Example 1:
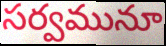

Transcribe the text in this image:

సర్వమునూ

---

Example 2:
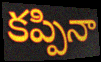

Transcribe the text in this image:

కప్పినా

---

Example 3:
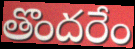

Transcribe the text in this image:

తొందరేం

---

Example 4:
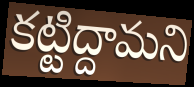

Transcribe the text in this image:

కట్టిద్దామని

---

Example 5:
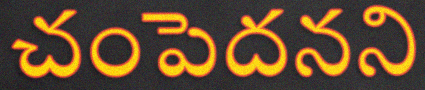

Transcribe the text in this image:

చంపెదనని